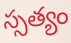
స్సత్యం